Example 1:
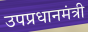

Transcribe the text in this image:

उपप्रधानमंत्री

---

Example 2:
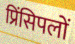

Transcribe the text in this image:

प्रिंसिपलों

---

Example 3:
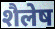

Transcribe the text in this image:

शैलेष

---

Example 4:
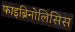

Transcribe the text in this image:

फाइब्रिनोलिसिस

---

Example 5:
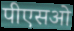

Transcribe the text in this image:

पीएसओ